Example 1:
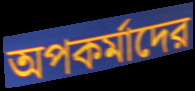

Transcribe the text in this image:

অপকর্মাদের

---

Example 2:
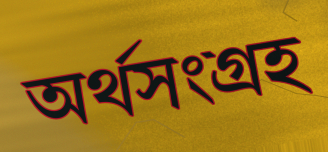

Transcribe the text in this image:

অর্থসংগ্রহ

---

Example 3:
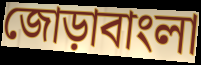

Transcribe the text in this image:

জোড়াবাংলা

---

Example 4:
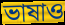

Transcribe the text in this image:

ভাষাও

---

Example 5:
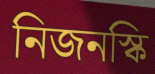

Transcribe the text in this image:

নিজনস্কি